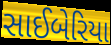
સાઈબેરિયા